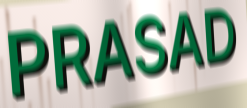
PRASAD